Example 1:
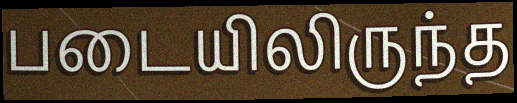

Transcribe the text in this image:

படையிலிருந்த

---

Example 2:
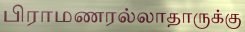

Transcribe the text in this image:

பிராமணரல்லாதாருக்கு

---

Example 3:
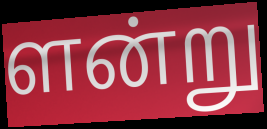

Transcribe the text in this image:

ளன்று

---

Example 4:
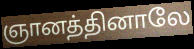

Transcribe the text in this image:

ஞானத்தினாலே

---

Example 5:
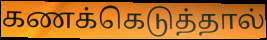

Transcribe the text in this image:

கணக்கெடுத்தால்